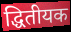
द्धितीयक